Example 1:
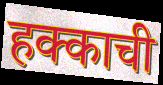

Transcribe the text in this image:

हक्काची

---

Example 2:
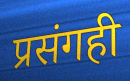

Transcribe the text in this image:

प्रसंगही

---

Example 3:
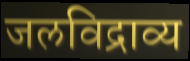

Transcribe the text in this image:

जलविद्राव्य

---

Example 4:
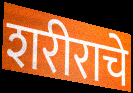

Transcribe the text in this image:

शरीराचे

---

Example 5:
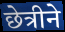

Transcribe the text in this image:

छेत्रीने